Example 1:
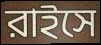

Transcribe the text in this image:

রাইসে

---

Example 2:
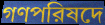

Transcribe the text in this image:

গণপরিষদে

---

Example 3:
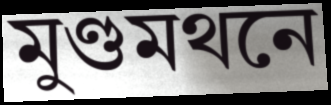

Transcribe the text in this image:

মুণ্ডমথনে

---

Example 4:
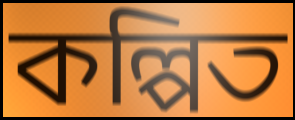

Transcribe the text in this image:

কল্পিত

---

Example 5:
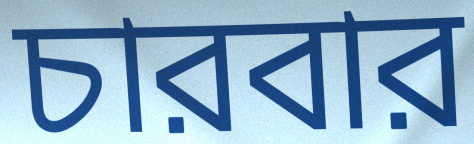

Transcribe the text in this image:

চারবার